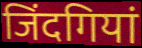
जिंदगियां